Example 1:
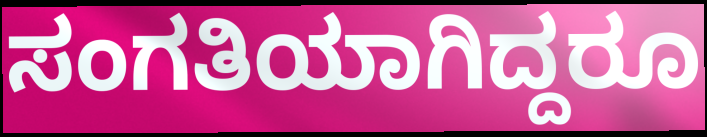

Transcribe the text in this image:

ಸಂಗತಿಯಾಗಿದ್ದರೂ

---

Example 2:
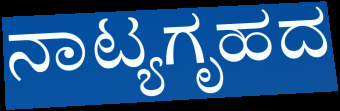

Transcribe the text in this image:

ನಾಟ್ಯಗೃಹದ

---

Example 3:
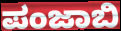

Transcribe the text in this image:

ಪಂಜಾಬಿ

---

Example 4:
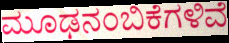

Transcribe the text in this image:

ಮೂಢನಂಬಿಕೆಗಳಿವೆ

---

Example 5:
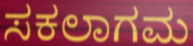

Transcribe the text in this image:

ಸಕಲಾಗಮ